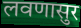
लवणासुर